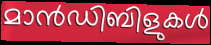
മാൻഡിബിളുകൾ